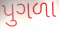
પુગળા